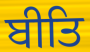
ਬੀਤਿ